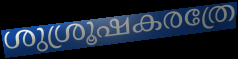
ശുശ്രൂഷകരത്രേ